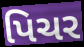
પિચર